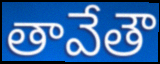
తావేతౌ